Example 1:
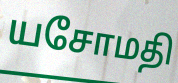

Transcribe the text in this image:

யசோமதி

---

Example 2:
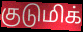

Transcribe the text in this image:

குடுமிக்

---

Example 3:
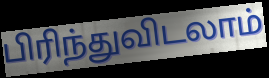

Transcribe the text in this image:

பிரிந்துவிடலாம்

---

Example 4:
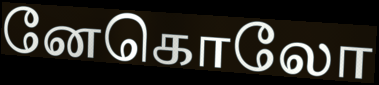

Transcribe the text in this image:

னேகொலோ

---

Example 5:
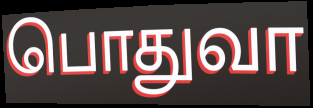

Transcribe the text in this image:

பொதுவா